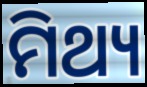
ମିଥ୍ୟ